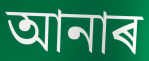
আনাৰ